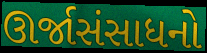
ઊર્જાસંસાધનો